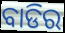
ବାଡିର